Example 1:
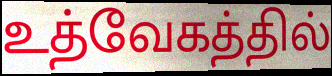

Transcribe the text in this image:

உத்வேகத்தில்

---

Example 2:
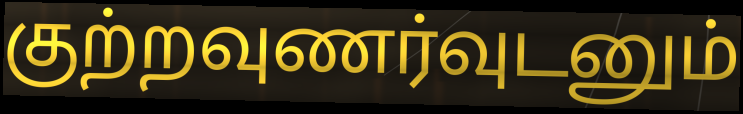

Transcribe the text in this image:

குற்றவுணர்வுடனும்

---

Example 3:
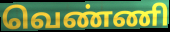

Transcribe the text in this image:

வெண்ணி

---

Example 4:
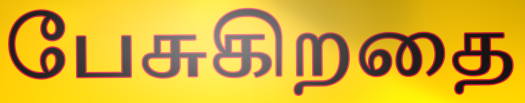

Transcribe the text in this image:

பேசுகிறதை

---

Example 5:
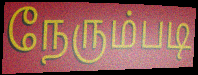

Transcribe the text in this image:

நேரும்படி